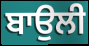
ਬਾਉਲੀ